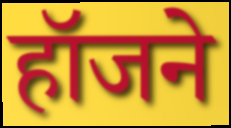
हॉजने